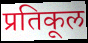
प्रतिकूल